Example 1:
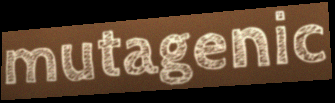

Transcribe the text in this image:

mutagenic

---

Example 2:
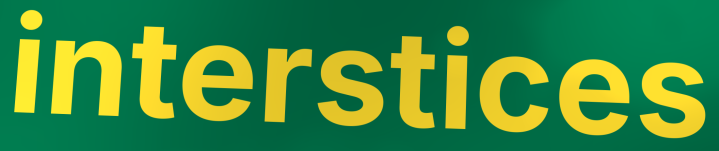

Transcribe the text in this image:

interstices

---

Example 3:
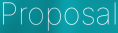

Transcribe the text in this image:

Proposal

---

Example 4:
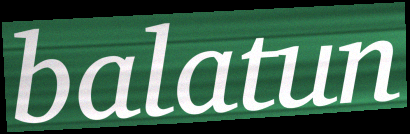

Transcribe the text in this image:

balatun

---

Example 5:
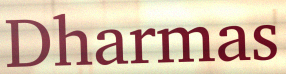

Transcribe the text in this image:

Dharmas